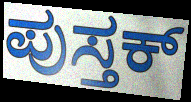
ಪುಸ್ತಕ್